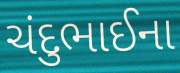
ચંદુભાઈના